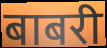
बाबरी